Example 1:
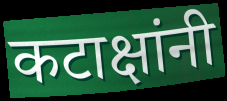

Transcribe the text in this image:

कटाक्षांनी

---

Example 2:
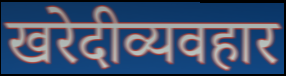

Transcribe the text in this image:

खरेदीव्यवहार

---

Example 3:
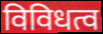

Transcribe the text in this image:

विविधत्व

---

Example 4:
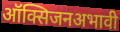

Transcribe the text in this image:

ऑक्सिजनअभावी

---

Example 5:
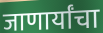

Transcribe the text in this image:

जाणार्यांचा